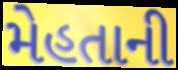
મેહતાની